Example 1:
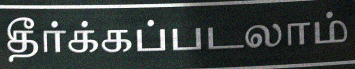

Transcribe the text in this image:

தீர்க்கப்படலாம்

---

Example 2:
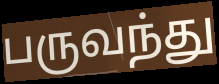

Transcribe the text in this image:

பருவந்து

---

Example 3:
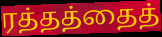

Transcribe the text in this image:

ரத்தத்தைத்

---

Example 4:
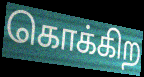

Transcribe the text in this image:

கொக்கிற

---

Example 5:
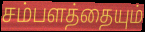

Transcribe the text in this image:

சம்பளத்தையும்